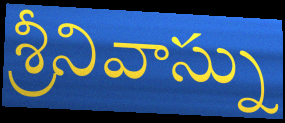
శ్రీనివాస్ను